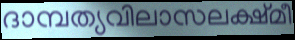
ദാമ്പത്യവിലാസലക്ഷ്മീ